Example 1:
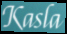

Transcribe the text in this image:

Kasla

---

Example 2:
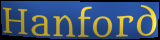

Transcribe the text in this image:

Hanford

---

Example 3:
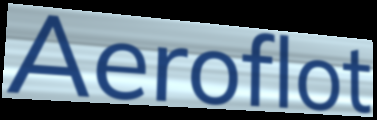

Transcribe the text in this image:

Aeroflot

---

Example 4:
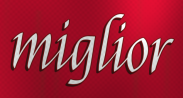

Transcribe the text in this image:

miglior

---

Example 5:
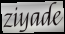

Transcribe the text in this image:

ziyade